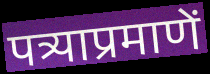
पत्र्याप्रमाणें